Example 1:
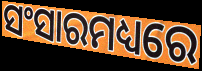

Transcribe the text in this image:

ସଂସାରମଧ୍ୟରେ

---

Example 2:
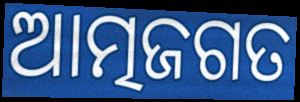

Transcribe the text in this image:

ଆତ୍ମଜଗତ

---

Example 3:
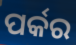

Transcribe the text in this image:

ପର୍କର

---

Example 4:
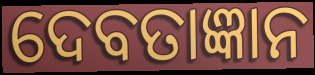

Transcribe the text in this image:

ଦେବତାଜ୍ଞାନ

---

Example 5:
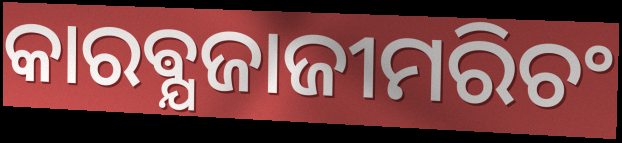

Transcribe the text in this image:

କାରଵ୍ଯଜାଜୀମରିଚଂ